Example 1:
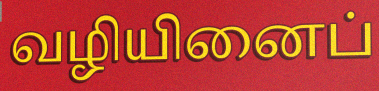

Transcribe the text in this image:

வழியினைப்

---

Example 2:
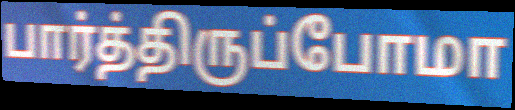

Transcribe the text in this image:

பார்த்திருப்போமா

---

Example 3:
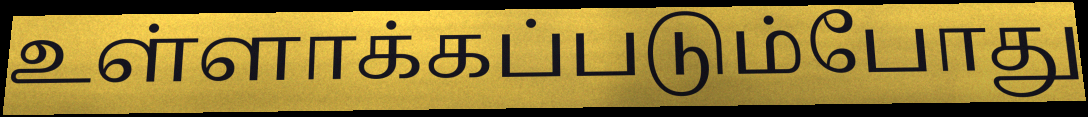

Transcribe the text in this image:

உள்ளாக்கப்படும்போது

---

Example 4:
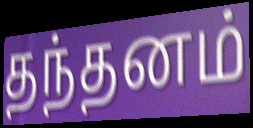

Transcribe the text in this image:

தந்தனம்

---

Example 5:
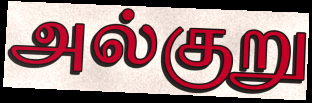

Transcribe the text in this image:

அல்குறு